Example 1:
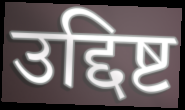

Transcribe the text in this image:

उद्दिष्ट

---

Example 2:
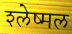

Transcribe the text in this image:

श्लेष्मल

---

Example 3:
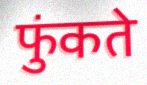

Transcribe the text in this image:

फुंकते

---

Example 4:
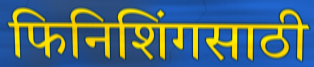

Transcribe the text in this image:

फिनिशिंगसाठी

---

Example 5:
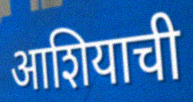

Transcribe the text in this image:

आशियाची